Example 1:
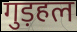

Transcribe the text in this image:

गुड़हल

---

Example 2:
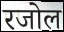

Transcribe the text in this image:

रजोल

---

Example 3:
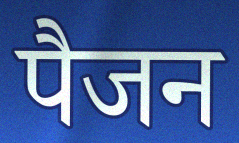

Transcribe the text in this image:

पैजन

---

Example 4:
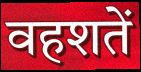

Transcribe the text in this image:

वहशतें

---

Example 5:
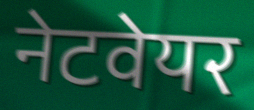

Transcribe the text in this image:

नेटवेयर